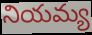
నియమ్య